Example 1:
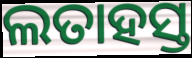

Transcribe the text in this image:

ଲତାହସ୍ତ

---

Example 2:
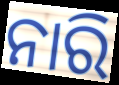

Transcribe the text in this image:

ନାରି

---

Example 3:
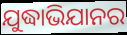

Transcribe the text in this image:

ଯୁଦ୍ଧାଭିଯାନର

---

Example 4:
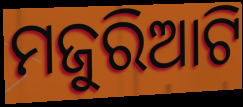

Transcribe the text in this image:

ମଜୁରିଆଟି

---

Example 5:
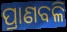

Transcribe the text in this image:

ପ୍ରାଣବଳି